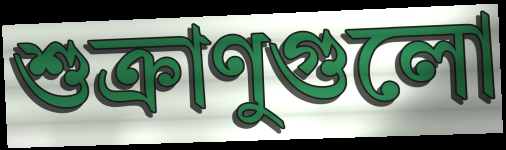
শুক্রাণুগুলো